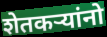
शेतकऱ्यांनो